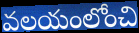
వలయంలోంచి